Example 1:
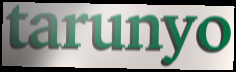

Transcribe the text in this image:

tarunyo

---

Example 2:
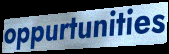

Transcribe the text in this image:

oppurtunities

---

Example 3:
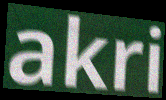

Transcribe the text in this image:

akri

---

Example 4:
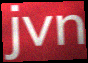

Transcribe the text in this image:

jvn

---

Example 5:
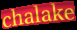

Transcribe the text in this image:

chalake